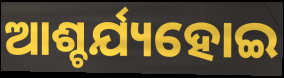
ଆଶ୍ଚର୍ଯ୍ୟହୋଇ